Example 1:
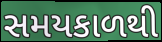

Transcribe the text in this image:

સમયકાળથી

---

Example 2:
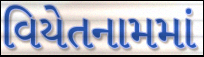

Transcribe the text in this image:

વિયેતનામમાં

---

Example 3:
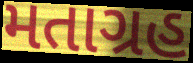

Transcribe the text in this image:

મતાગ્રહ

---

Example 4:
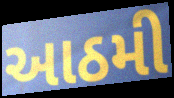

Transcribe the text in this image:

આઠમી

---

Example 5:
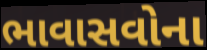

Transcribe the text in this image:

ભાવાસવોના